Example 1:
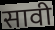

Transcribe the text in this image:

सावी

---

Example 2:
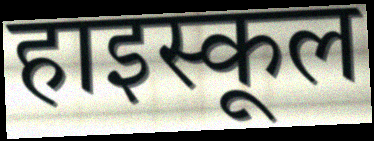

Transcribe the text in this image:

हाइस्कूल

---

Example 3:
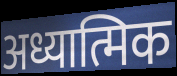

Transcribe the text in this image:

अध्यात्मिक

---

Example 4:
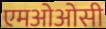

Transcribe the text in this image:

एमओओसी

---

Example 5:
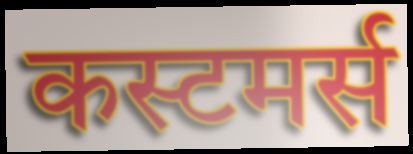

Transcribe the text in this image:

कस्‍टमर्स